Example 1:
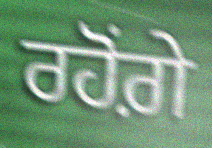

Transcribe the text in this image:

ਰਹੋਂਗ਼ੇ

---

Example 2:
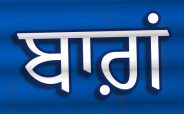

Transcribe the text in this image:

ਬਾਗ਼ਂ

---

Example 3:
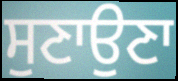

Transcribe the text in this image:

ਸੁਣਾਉਣਾ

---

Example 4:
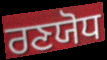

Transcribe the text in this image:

ਰਣਯੋਧ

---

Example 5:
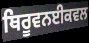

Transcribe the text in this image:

ਥਿਰੂਵਨਈਕਵਲ